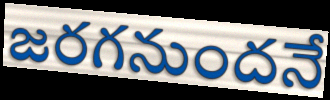
జరగనుందనే